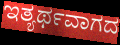
ಇತ್ಯರ್ಥವಾಗದ